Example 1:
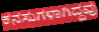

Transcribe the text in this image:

ಕನಸುಗಳಾಗಿದ್ದವು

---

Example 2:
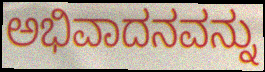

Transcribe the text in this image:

ಅಭಿವಾದನವನ್ನು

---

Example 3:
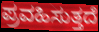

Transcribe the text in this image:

ಪ್ರವಹಿಸುತ್ತದೆ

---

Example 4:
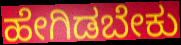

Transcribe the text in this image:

ಹೇಗಿಡಬೇಕು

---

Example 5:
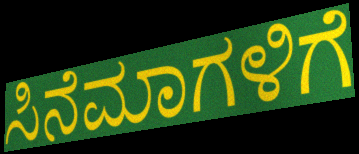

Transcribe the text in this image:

ಸಿನೆಮಾಗಳಿಗೆ